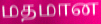
மதமான